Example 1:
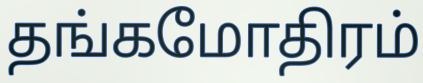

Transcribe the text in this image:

தங்கமோதிரம்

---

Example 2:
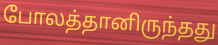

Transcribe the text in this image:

போலத்தானிருந்தது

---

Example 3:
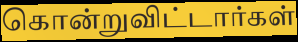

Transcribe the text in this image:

கொன்றுவிட்டார்கள்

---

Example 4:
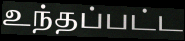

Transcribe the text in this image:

உந்தப்பட்ட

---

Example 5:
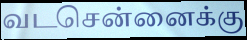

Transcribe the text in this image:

வடசென்னைக்கு